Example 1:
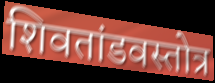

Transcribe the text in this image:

शिवतांडवस्तोत्र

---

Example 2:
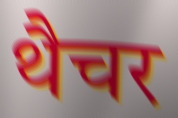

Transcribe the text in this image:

थैचर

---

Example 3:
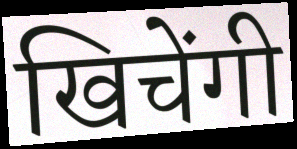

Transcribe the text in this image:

खिचेंगी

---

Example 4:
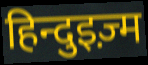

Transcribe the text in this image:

हिन्दुइज़्म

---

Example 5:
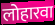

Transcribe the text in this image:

लोहारवा